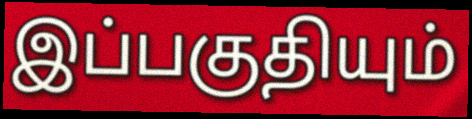
இப்பகுதியும்